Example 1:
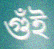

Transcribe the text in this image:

গুঁই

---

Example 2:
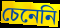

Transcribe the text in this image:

চেনেনি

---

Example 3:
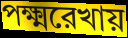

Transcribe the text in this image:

পক্ষ্মরেখায়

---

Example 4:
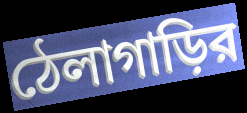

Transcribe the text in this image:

ঠেলাগাড়ির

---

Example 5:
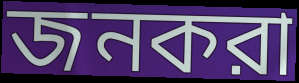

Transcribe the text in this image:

জনকরা